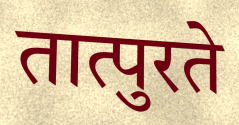
तात्पुरते